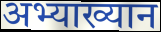
अभ्याख्यान